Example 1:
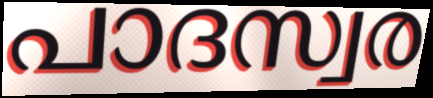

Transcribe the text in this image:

പാദസ്വര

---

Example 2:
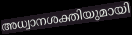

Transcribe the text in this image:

അധ്വാനശക്തിയുമായി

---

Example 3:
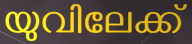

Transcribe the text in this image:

യുവിലേക്ക്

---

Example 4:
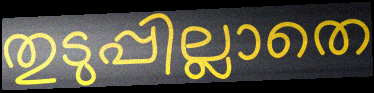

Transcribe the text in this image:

തുടുപ്പില്ലാതെ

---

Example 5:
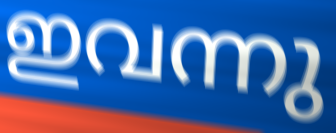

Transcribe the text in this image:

ഇവന്നു